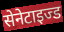
सेनेटाइज्ड